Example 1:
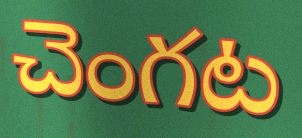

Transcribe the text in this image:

చెంగట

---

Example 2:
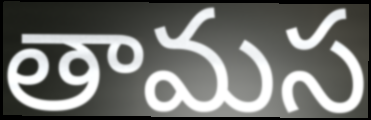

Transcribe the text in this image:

తామస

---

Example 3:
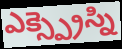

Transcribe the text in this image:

ఎక్స్ప్రెస్ని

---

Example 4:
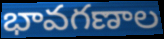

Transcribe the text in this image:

భావగణాల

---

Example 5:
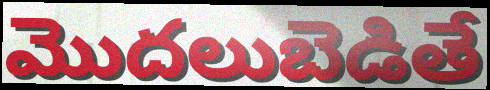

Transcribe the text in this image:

మొదలుబెడితే